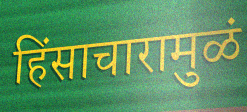
हिंसाचारामुळं